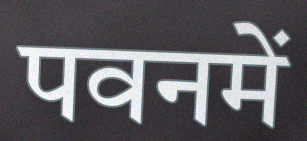
पवनमें